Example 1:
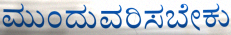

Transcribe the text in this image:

ಮುಂದುವರಿಸಬೇಕು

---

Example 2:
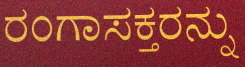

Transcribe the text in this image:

ರಂಗಾಸಕ್ತರನ್ನು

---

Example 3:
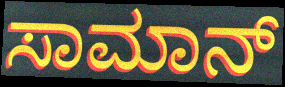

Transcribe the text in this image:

ಸಾಮಾನ್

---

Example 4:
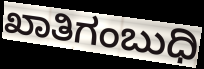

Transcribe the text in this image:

ಖಾತಿಗಂಬುಧಿ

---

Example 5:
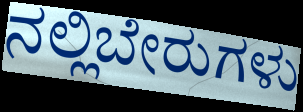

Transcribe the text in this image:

ನಲ್ಲಿಬೇರುಗಳು